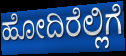
ಹೋದಿರೆಲ್ಲಿಗೆ